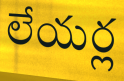
లేయర్ల